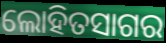
ଲୋହିତସାଗର